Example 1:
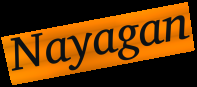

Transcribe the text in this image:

Nayagan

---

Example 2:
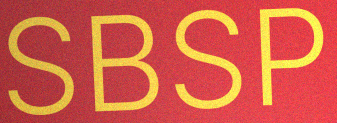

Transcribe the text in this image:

SBSP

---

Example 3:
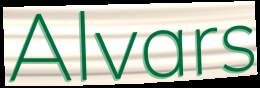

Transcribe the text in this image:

Alvars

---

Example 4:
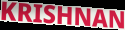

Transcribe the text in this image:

KRISHNAN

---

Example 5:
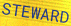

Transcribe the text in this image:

STEWARD